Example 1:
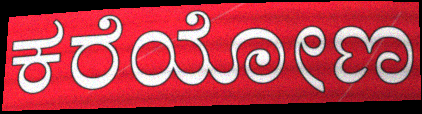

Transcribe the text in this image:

ಕರೆಯೋಣ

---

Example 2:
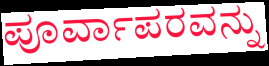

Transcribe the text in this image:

ಪೂರ್ವಾಪರವನ್ನು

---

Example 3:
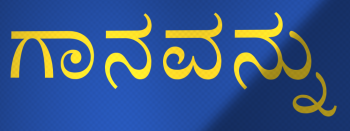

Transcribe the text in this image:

ಗಾನವನ್ನು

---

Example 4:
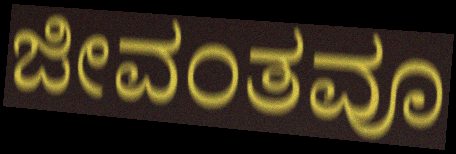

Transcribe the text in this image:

ಜೀವಂತವೂ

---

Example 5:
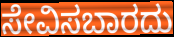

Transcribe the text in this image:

ಸೇವಿಸಬಾರದು